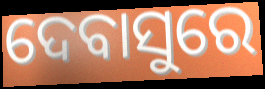
ଦେବାସୁରେ